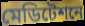
মেডিটেশনে